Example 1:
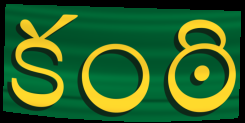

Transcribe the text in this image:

కంఠి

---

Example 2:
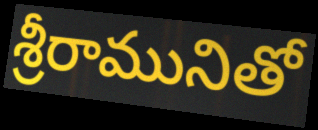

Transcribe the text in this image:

శ్రీరామునితో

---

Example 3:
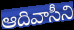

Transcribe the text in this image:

ఆదివాసీని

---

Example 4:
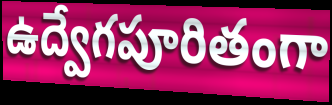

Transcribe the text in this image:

ఉద్వేగపూరితంగా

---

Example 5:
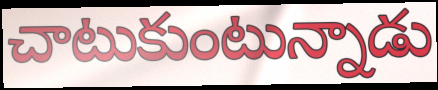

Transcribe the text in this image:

చాటుకుంటున్నాడు